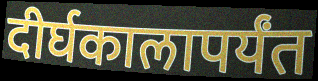
दीर्घकालापर्यंत